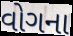
વોગના